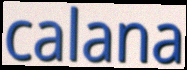
calana